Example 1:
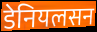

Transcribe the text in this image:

डेनियलसन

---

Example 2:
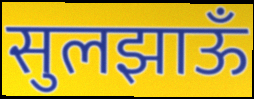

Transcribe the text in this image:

सुलझाऊँ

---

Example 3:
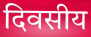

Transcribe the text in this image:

दिवसीय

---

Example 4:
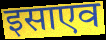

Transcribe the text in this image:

इसाएव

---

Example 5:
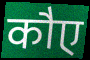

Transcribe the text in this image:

कौए